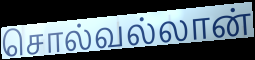
சொல்வல்லான்